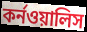
কর্নওয়ালিস